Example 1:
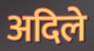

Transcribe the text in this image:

अदिले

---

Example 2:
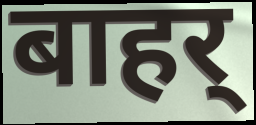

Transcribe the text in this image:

बाहर्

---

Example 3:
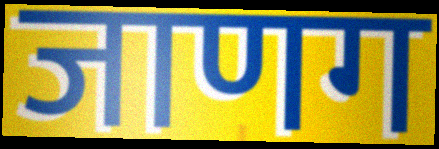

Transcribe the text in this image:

जाणग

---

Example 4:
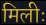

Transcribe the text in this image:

मिलीः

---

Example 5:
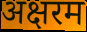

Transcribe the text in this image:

अक्षरम